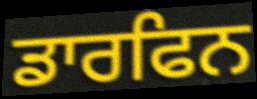
ਡਾਰਫਿਨ